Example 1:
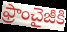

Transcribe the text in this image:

ఫ్రాంచైజీకి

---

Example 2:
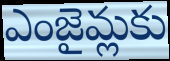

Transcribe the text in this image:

ఎంజైమ్లకు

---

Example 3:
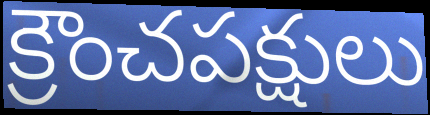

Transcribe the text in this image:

క్రౌంచపక్షులు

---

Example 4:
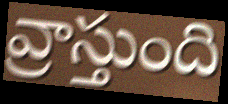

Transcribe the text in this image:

వ్రాస్తుంది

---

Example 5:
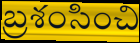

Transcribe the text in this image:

బ్రశంసించి